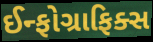
ઈન્ફોગ્રાફિક્સ